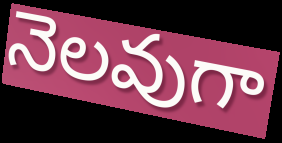
నెలవుగా